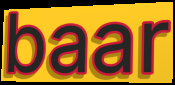
baar